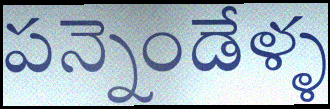
పన్నెండేళ్ళ